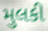
મુલકી